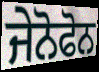
ਜੇਨੋਫੋਨ